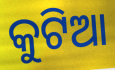
କୁଟିଆ